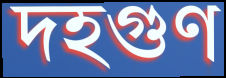
দহগুণ